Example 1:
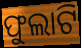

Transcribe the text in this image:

ଫୁଲାଟି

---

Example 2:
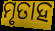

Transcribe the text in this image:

ମୃତାହ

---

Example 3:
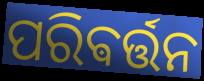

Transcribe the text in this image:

ପରିଵର୍ତ୍ତନ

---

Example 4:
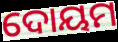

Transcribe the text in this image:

ଦୋୟମ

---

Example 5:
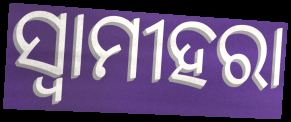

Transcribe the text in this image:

ସ୍ଵାମୀହରା